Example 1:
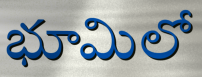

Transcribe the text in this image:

భూమిలో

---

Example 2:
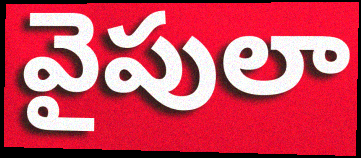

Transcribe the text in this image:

వైపులా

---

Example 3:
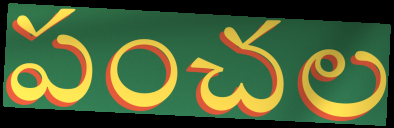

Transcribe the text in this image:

పంచల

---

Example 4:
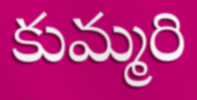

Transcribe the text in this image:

కుమ్మరి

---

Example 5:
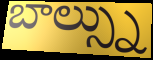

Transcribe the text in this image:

బాల్స్ను